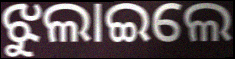
ଝୁଲାଇଲେ